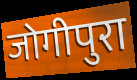
जोगीपुरा